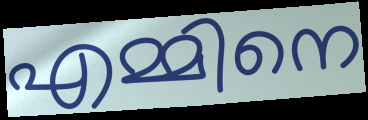
എമ്മിനെ